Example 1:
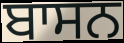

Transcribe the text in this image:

ਬਾਸਨ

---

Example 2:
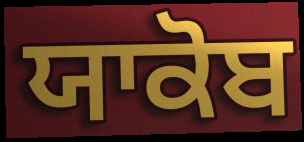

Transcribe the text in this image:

ਯਾਕੋਬ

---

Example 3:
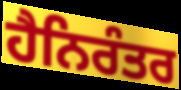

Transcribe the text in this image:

ਹੈਨਿਰੰਤਰ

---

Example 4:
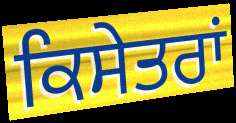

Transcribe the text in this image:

ਕਿਸੇਤਰਾਂ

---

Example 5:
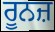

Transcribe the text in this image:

ਰੂਨਜ਼